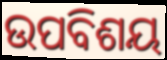
ଉପବିଶୟ